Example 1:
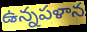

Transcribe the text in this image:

ఉన్నపళాన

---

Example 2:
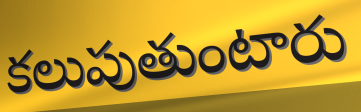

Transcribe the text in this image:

కలుపుతుంటారు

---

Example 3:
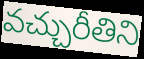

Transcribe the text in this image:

వచ్చురీతిని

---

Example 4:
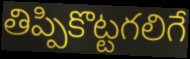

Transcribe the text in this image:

తిప్పికొట్టగలిగే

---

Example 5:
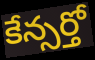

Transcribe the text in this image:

కేన్సర్తో